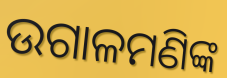
ଉଗାଳମଣିଙ୍କ